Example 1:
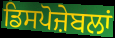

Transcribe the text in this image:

ਡਿਸਪੋਜ਼ੇਬਲਾਂ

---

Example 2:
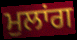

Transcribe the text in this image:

ਮੁਲਾਂਗ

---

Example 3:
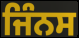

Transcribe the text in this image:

ਜਿੰਨਸ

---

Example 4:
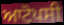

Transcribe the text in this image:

ਆਟੋਪਸੀ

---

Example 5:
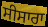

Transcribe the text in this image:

ਸੀਸਾਰਾ